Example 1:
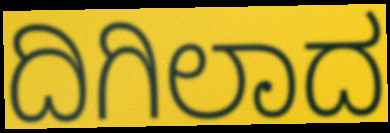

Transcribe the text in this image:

ದಿಗಿಲಾದ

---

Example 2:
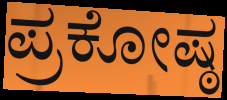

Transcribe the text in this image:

ಪ್ರಕೋಷ್ಠ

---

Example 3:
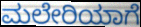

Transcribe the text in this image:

ಮಲೇರಿಯಾಗೆ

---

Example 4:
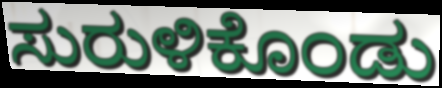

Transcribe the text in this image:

ಸುರುಳಿಕೊಂಡು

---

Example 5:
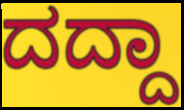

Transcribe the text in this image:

ದದ್ದಾ